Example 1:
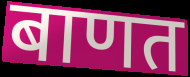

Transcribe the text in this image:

बाणत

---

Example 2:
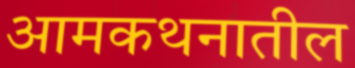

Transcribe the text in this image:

आमकथनातील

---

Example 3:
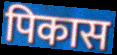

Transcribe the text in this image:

पिकास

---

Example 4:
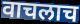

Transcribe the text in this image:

वाचलाच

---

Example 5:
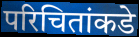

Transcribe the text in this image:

परिचितांकडे